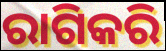
ରାଗିକରି